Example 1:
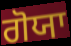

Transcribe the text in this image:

ਗੋਯਾ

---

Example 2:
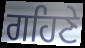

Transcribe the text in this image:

ਗਹਿਣੇ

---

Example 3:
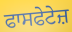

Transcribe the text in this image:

ਫਾਸਫੇਟੇਜ਼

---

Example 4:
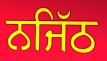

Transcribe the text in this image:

ਨਜਿੱਠ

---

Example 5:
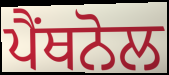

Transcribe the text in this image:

ਪੈਂਥਨੋਲ